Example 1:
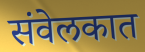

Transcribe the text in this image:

संवेलकात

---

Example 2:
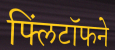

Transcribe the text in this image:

फ्लिंटॉफने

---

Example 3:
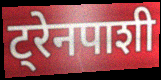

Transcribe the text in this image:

ट्रेनपाशी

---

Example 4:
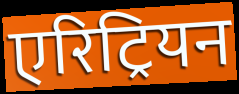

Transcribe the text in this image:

एरिट्रियन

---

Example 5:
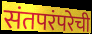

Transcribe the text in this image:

संतपरंपरेची